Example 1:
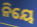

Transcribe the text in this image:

ନିୟେ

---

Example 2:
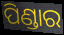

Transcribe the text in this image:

ପିଣ୍ଡାର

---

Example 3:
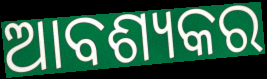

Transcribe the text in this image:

ଆବଶ୍ୟକର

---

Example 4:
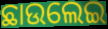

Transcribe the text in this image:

ଛାଉଲେଇ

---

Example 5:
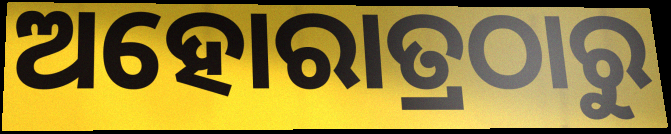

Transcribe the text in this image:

ଅହୋରାତ୍ରଠାରୁ